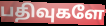
பதிவுகளே